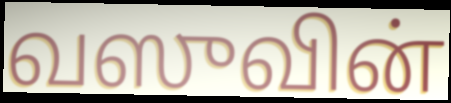
வஸுவின்